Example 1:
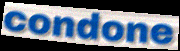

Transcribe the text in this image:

condone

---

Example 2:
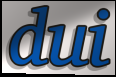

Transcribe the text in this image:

dui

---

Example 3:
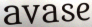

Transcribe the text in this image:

avase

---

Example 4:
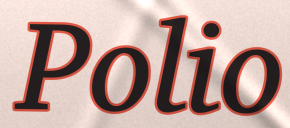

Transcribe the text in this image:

Polio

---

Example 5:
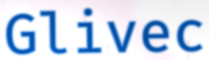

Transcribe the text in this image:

Glivec